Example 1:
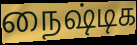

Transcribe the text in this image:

நைஷ்டிக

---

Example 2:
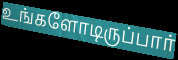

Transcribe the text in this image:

உங்களோடிருப்பார்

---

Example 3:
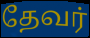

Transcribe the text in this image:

தேவர்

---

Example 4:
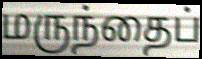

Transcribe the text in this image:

மருந்தைப்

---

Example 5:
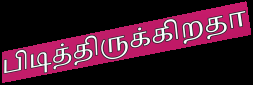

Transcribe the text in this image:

பிடித்திருக்கிறதா